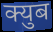
क्युब